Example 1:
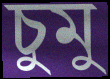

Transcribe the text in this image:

চুমু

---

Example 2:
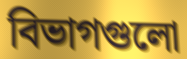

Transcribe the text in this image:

বিভাগগুলো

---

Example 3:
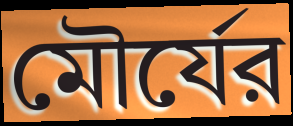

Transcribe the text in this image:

মৌর্যের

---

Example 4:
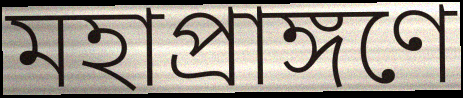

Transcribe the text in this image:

মহাপ্রাঙ্গণে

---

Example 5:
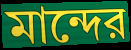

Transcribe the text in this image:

মান্দের